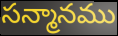
సన్మానము